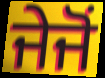
ਜੇਜੋਂ